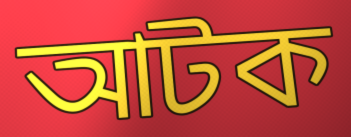
আটক